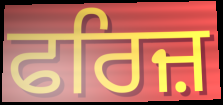
ਫਰਿਜ਼